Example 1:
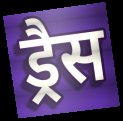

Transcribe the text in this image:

ड्रैस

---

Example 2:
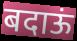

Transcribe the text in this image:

बदाऊं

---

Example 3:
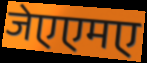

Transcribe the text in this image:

जेएएमए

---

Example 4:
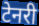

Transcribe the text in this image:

टेनरी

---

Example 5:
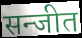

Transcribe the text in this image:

सन्जीत